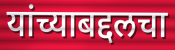
यांच्याबद्दलचा